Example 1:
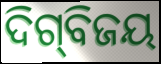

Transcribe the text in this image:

ଦିଗ୍‍ବିଜୟ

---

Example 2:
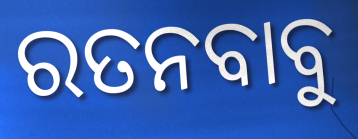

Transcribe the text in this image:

ରତନବାବୁ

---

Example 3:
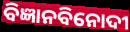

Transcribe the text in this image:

ବିଜ୍ଞାନବିନୋଦୀ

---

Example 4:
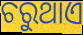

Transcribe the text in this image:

ଚରୁଥାଏ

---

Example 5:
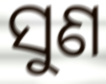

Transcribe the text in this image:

ସୁଣ